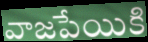
వాజపేయికి